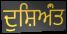
ਦੁਸ਼ਿਅਂੰਤ